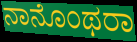
ನಾನೊಂಥರಾ